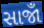
સાજાઁ